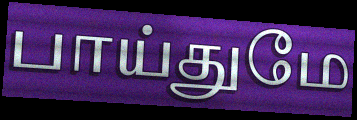
பாய்துமே